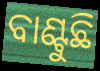
ବାଣ୍ଟୁଛି